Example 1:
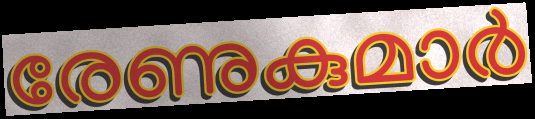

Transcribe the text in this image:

രേണുകുമാർ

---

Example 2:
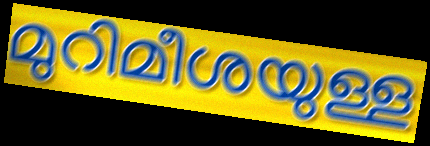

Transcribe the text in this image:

മുറിമീശയുള്ള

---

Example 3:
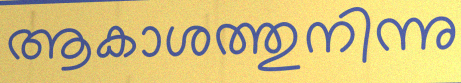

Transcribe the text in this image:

ആകാശത്തുനിന്നു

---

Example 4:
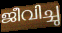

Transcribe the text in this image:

ജീവിച്ചു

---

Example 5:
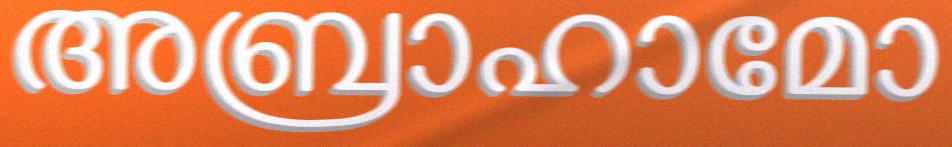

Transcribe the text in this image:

അബ്രാഹാമോ